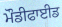
ਮੌਡੀਫਾਈਡ